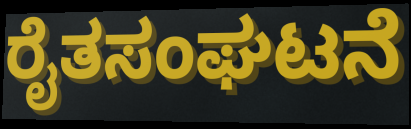
ರೈತಸಂಘಟನೆ